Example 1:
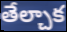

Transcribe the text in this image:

తేల్చాక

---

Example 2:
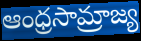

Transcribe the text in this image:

ఆంధ్రసామ్రాజ్య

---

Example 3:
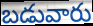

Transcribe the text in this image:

బడువారు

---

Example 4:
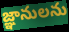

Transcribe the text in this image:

జ్ఞానులను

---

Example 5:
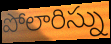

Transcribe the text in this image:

పోలారిస్ను